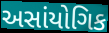
અસાંયોગિક